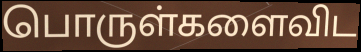
பொருள்களைவிட